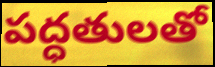
పద్ధతులతో